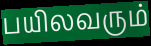
பயிலவரும்